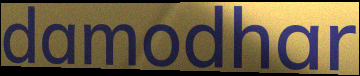
damodhar